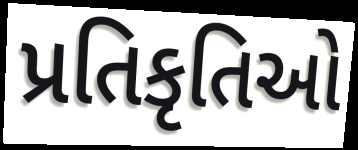
પ્રતિકૃતિઓ